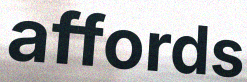
affords